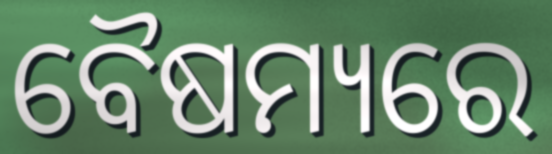
ବୈଷମ୍ୟରେ